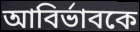
আবির্ভাবকে